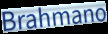
Brahmano